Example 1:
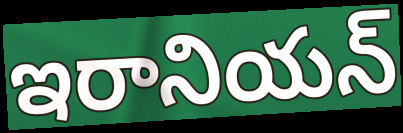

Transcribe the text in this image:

ఇరానియన్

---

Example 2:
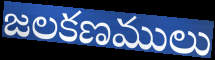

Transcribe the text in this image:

జలకణములు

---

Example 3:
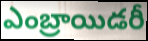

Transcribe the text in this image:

ఎంబ్రాయిడరీ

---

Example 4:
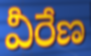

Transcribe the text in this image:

వీరేణ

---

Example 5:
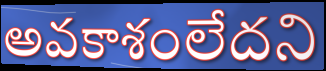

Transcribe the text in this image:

అవకాశంలేదని